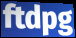
ftdpg